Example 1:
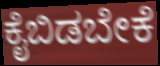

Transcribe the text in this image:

ಕೈಬಿಡಬೇಕೆ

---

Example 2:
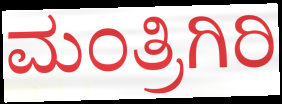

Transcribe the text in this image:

ಮಂತ್ರಿಗಿರಿ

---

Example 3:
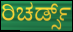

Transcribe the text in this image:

ರಿಚರ್ಡ್ಸ್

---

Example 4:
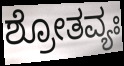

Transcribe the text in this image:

ಶ್ರೋತವ್ಯಃ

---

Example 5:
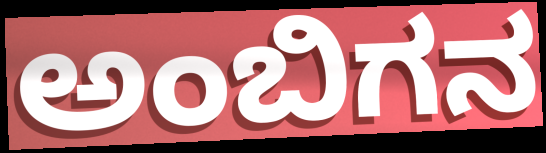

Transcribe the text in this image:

ಅಂಬಿಗನ